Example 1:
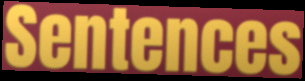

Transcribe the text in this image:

Sentences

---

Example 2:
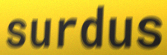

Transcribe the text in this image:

surdus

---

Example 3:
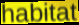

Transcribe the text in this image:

habitat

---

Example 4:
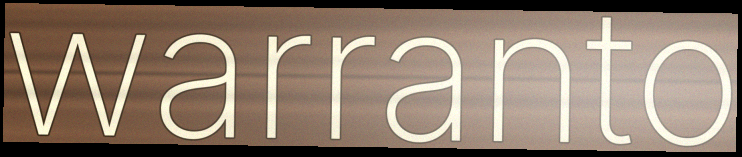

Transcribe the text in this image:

warranto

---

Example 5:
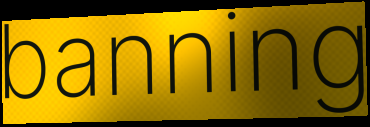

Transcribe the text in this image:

banning